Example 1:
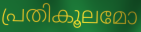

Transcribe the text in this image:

പ്രതികൂലമോ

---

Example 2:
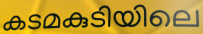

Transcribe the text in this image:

കടമകുടിയിലെ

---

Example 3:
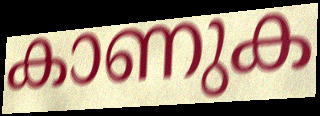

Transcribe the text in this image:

കാണുക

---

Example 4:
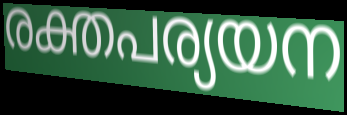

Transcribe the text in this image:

രക്തപര്യയന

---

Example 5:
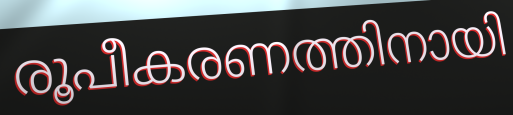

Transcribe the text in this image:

രൂപീകരണത്തിനായി